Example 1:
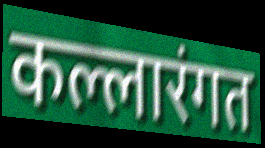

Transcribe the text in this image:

कल्लारंगत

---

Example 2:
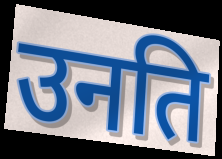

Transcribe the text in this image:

उनति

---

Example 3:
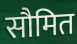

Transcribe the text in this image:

सौमित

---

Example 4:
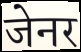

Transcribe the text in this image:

जेनर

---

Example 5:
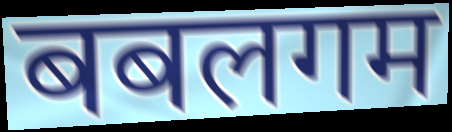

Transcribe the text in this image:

बबलगम